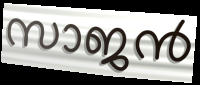
സാജൻ